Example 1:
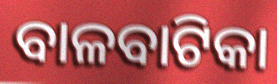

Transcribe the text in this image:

ବାଳବାଟିକା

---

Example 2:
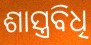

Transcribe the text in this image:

ଶାସ୍ତ୍ରବିଧି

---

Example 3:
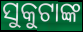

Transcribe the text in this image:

ସୁକୁଟାଙ୍କ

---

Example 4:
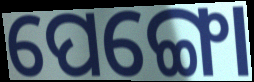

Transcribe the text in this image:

ପେଙ୍ଗୋ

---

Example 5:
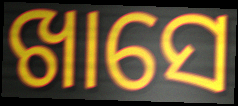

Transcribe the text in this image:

ଖାସେ